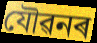
যৌৱনৰ